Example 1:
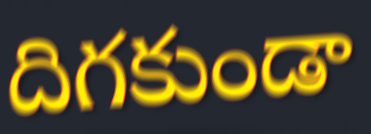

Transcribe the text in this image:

దిగకుండా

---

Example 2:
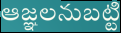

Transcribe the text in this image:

ఆజ్ఞలనుబట్టి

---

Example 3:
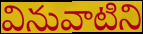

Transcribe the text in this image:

వినువాటిని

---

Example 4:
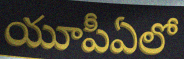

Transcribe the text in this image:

యూపీఏలో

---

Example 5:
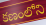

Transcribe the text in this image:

కణంలోని